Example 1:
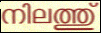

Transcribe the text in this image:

നിലത്തു്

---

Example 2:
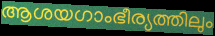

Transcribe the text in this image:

ആശയഗാംഭീര്യത്തിലും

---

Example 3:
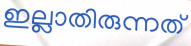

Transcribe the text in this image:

ഇല്ലാതിരുന്നത്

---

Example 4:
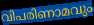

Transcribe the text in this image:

വിപരിണാമവും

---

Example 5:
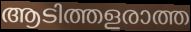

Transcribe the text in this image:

ആടിത്തളരാത്ത